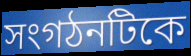
সংগঠনটিকে